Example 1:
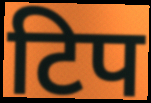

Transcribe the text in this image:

टिप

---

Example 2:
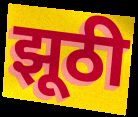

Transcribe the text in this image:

झूठी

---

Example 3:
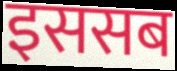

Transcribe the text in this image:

इससब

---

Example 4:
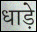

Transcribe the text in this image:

धाड़े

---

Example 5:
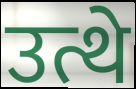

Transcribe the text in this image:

उत्थे